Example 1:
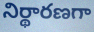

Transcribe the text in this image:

నిర్థారణగా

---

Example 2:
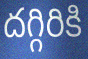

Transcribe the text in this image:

దగ్గిరికి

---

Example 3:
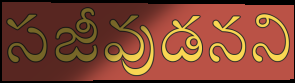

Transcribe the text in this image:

సజీవుడనని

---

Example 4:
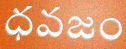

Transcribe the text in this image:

ధవజం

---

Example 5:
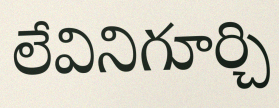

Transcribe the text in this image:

లేవినిగూర్చి